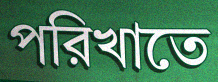
পরিখাতে